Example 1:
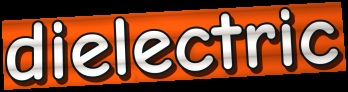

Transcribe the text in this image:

dielectric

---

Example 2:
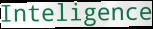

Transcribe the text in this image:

Inteligence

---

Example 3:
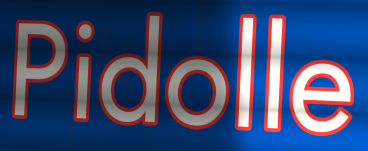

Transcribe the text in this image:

Pidolle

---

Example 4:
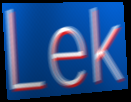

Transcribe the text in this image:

Lek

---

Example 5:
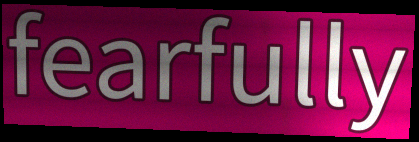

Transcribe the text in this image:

fearfully